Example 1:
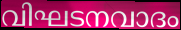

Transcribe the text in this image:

വിഘടനവാദം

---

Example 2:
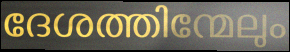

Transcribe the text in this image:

ദേശത്തിന്മേലും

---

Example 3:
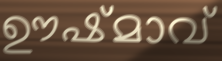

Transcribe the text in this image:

ഊഷ്മാവ്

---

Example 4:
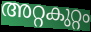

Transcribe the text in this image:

അറ്റകുറ്റം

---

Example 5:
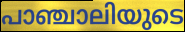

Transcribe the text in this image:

പാഞ്ചാലിയുടെ